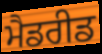
ਮੈਡਰੀਡ